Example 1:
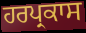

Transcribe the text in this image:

ਹਰਪ੍ਰਕਾਸ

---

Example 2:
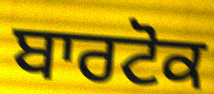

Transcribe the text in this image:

ਬਾਰਟੋਕ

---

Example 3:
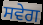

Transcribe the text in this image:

ਸਵੇਗ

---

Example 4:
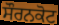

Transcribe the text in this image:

ਸੌਰਨਕੋਟ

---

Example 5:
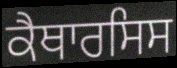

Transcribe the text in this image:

ਕੈਥਾਰਸਿਸ